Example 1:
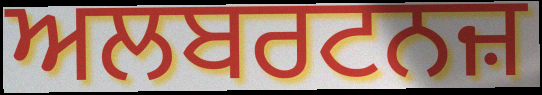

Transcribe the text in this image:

ਅਲਬਰਟਨਜ਼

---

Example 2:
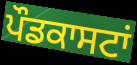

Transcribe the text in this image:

ਪੌਡਕਾਸਟਾਂ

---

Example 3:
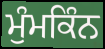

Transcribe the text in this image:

ਮੁੰਮਕਿੰਨ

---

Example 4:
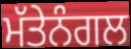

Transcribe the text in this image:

ਮੱਤੇਨੰਗਲ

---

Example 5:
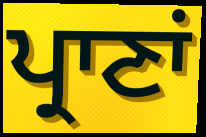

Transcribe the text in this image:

ਪ੍ਰਾਣਾਂ